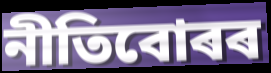
নীতিবোৰৰ